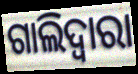
ଗାଲିଦ୍ଵାରା